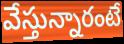
వేస్తున్నారంటే